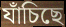
যাঁচিছে